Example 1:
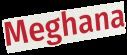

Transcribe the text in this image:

Meghana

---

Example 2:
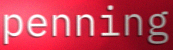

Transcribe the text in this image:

penning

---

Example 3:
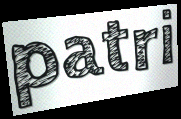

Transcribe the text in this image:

patri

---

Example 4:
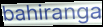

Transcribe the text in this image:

bahiranga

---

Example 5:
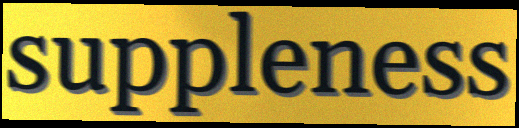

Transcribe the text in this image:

suppleness